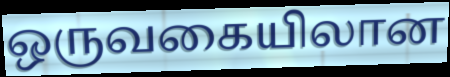
ஒருவகையிலான